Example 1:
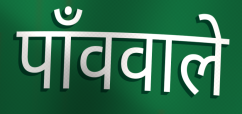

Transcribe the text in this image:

पाँववाले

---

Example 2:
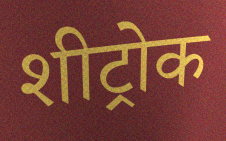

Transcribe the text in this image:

शीट्रोक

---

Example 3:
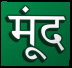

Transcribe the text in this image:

मूंद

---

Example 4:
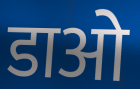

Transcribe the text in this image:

डाओ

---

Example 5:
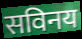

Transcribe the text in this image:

सविनय